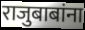
राजुबाबांना